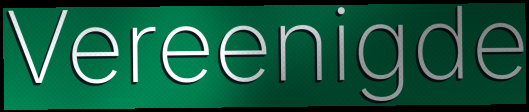
Vereenigde